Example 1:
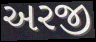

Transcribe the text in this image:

અરજી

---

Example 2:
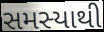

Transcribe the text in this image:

સમસ્યાથી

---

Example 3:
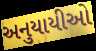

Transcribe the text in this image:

અનુયાયીઓ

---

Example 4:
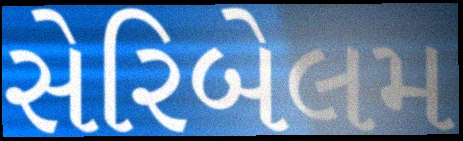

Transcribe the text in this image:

સેરિબેલમ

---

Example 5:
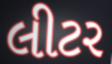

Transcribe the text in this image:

લીટર